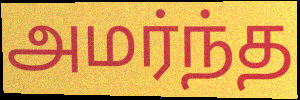
அமர்ந்த